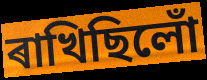
ৰাখিছিলোঁ